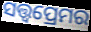
ସତ୍ତ୍ୱପ୍ରେମର